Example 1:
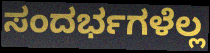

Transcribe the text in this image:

ಸಂದರ್ಭಗಳೆಲ್ಲ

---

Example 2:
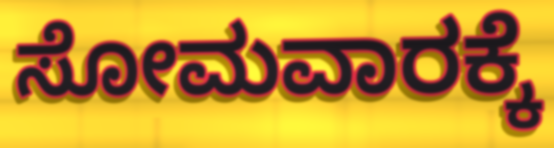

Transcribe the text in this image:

ಸೋಮವಾರಕ್ಕೆ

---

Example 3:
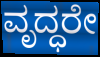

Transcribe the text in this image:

ವೃದ್ಧರೇ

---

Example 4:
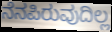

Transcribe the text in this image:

ನೆನಪಿರುವುದಿಲ್ಲ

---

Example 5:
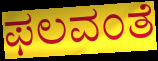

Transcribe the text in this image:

ಫಲವಂತೆ